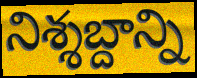
నిశ్శబ్దాన్ని